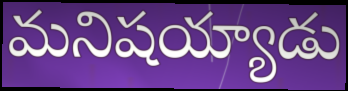
మనిషయ్యాడు